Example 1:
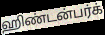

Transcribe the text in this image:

ஹிண்டன்பர்க்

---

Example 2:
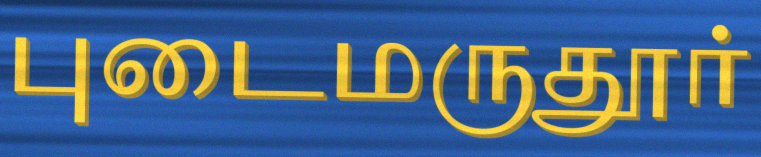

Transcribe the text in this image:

புடைமருதூர்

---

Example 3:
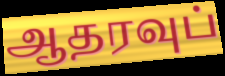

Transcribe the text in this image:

ஆதரவுப்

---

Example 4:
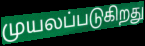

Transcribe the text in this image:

முயலப்படுகிறது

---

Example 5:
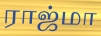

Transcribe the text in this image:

ராஜ்மா